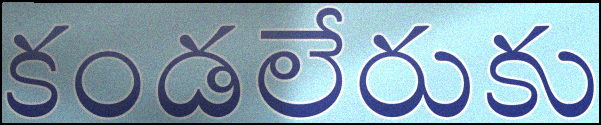
కండలేరుకు